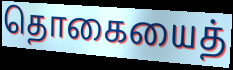
தொகையைத்